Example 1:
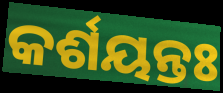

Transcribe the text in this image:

କର୍ଶୟନ୍ତଃ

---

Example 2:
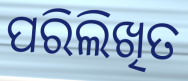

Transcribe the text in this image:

ପରିଲିଖିତ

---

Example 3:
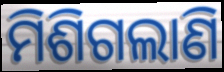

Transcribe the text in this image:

ମିଶିଗଲାଣି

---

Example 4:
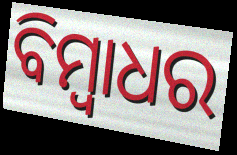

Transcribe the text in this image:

ବିମ୍ବାଧର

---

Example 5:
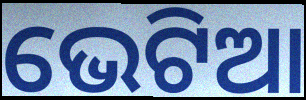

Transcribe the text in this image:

ଭେଟିଆ